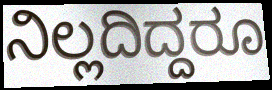
ನಿಲ್ಲದಿದ್ದರೂ